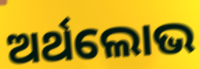
ଅର୍ଥଲୋଭ